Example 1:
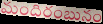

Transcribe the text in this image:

మందిరంబునం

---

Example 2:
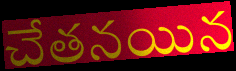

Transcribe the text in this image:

చేతనయిన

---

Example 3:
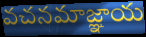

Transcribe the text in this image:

వచనమాజ్ఞాయ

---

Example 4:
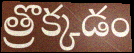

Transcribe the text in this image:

త్రొక్కడం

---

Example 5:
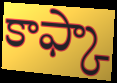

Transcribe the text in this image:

కాఫ్కా